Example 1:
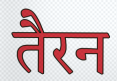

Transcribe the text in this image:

तैरन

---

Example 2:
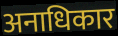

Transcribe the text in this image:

अनाधिकार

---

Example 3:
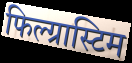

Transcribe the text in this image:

फिल्ग्रास्टिम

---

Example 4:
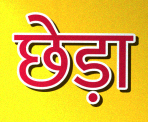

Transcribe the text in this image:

छेड़ा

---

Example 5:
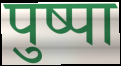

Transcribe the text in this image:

पुष्पा